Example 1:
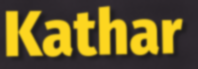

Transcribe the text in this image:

Kathar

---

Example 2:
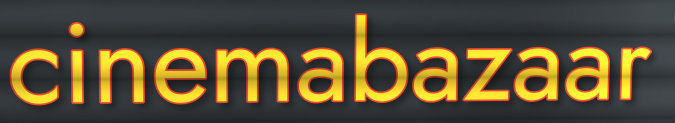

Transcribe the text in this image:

cinemabazaar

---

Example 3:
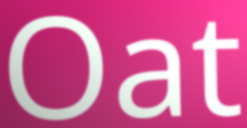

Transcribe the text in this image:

Oat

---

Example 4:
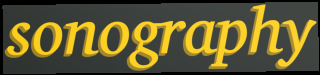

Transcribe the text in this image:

sonography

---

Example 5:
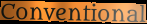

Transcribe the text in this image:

Conventional